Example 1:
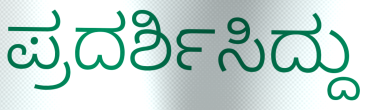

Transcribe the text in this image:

ಪ್ರದರ್ಶಿಸಿದ್ದು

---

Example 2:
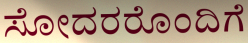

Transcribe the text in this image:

ಸೋದರರೊಂದಿಗೆ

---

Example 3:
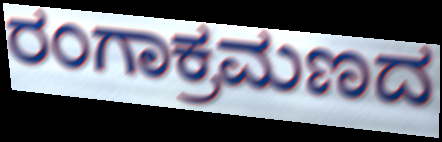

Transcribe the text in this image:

ರಂಗಾಕ್ರಮಣದ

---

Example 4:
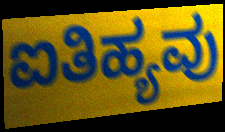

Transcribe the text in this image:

ಐತಿಹ್ಯವು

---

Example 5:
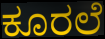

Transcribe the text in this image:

ಕೂರಲೆ